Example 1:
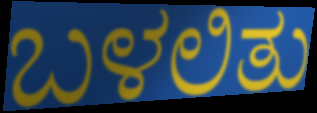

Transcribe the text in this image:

ಬಳಲಿತು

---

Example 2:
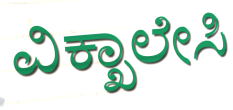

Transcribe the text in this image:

ವಿಕ್ಖಾಲೇಸಿ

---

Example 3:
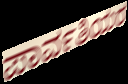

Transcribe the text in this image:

ಪಾರ್ವತಿಯರ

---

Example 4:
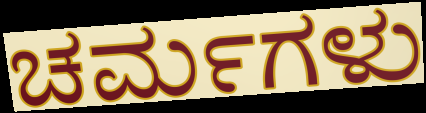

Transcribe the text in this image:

ಚರ್ಮಗಳು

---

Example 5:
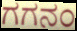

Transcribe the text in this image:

ಗಗನಂ